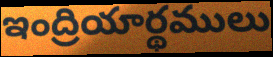
ఇంద్రియార్థములు